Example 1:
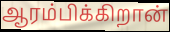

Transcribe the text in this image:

ஆரம்பிக்கிறான்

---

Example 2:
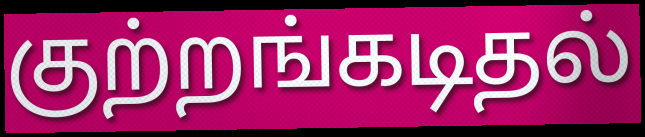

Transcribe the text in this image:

குற்றங்கடிதல்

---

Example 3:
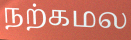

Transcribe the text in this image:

நற்கமல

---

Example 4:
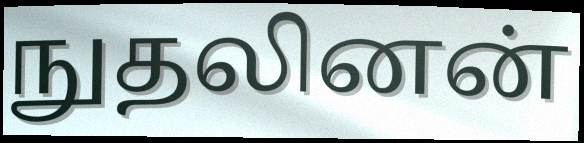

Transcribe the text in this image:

நுதலினன்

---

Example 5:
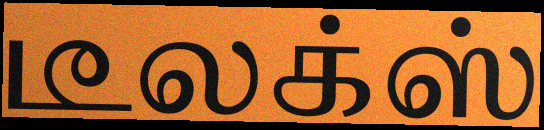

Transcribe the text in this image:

டீலக்ஸ்